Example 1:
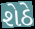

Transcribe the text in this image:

શેઠે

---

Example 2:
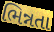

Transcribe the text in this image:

ભિન્નતા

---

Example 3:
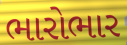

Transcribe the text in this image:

ભારોભાર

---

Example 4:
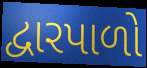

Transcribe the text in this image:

દ્વારપાળો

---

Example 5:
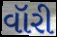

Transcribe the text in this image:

વૉરી